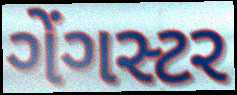
ગેંગસ્ટર